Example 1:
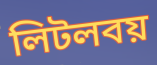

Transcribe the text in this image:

লিটলবয়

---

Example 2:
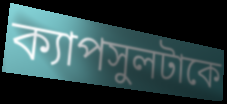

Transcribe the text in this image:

ক্যাপসুলটাকে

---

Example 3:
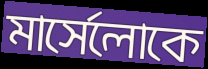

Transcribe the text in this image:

মার্সেলোকে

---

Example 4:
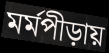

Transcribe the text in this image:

মর্মপীড়ায়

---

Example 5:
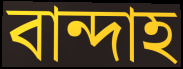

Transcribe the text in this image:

বান্দাহ